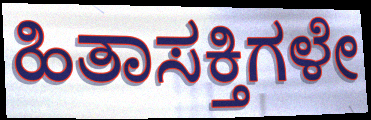
ಹಿತಾಸಕ್ತಿಗಳೇ